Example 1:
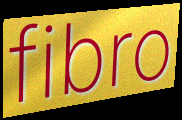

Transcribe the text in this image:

fibro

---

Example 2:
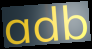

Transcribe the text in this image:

adb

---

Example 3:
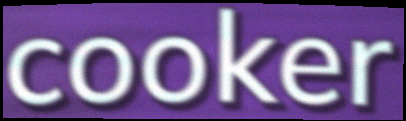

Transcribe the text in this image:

cooker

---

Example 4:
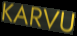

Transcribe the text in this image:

KARVU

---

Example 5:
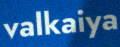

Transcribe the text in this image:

valkaiya